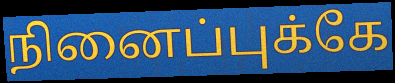
நினைப்புக்கே